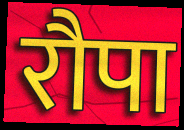
रौपा